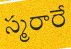
స్మరారే